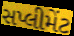
સપ્લીમેંટ